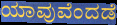
ಯಾವುವೆಂದಡೆ